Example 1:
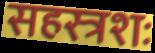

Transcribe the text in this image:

सहस्त्रशः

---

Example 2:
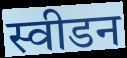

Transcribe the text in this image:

स्वीडन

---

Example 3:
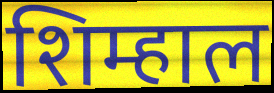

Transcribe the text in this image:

शिम्हाल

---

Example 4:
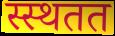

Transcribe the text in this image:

स्स्थतत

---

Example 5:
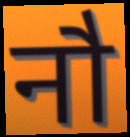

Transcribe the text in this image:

नौ